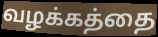
வழக்கத்தை